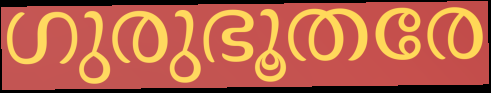
ഗുരുഭൂതരേ